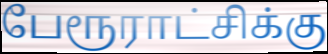
பேரூராட்சிக்கு